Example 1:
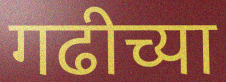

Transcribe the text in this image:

गढीच्या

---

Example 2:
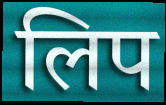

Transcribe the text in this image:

लिप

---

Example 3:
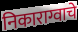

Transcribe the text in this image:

निकाराग्वाचे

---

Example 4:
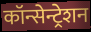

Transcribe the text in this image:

कॉन्सेन्ट्रेशन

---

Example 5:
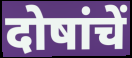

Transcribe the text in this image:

दोषांचें